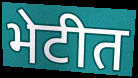
भेटीत